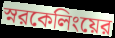
স্নরকেলিংয়ের